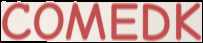
COMEDK